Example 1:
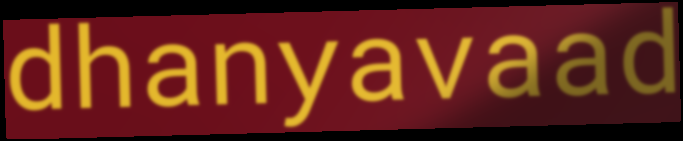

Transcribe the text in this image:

dhanyavaad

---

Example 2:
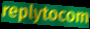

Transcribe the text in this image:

replytocom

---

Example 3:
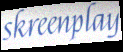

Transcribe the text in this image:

skreenplay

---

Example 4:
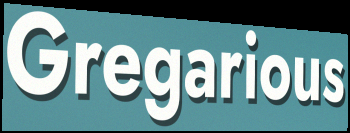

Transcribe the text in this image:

Gregarious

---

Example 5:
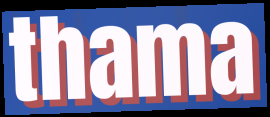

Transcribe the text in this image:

thama